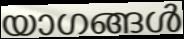
യാഗങ്ങൾ